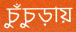
চুঁচুড়ায়